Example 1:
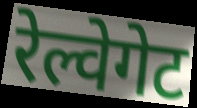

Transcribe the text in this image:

रेल्वेगेट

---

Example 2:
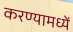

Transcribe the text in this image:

करण्यामध्यें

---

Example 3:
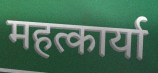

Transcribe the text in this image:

महत्कार्या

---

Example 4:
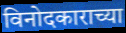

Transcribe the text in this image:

विनोदकाराच्या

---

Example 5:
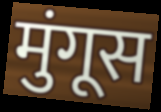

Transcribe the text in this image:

मुंगूस